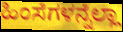
ಹಿಂಸೆಗಳನ್ನೆಲ್ಲಾ